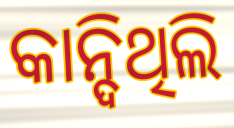
କାନ୍ଦିଥିଲି